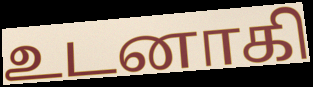
உடனாகி